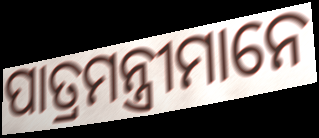
ପାତ୍ରମନ୍ତ୍ରୀମାନେ